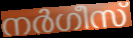
നർഗീസ്